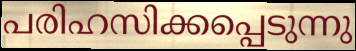
പരിഹസിക്കപ്പെടുന്നു